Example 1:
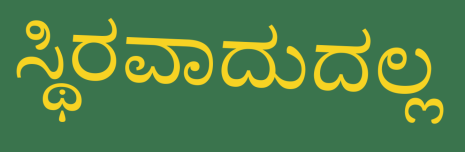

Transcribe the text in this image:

ಸ್ಥಿರವಾದುದಲ್ಲ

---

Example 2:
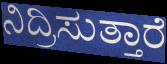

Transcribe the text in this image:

ನಿದ್ರಿಸುತ್ತಾರೆ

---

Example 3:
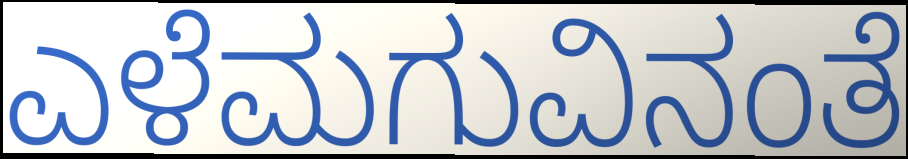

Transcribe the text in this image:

ಎಳೆಮಗುವಿನಂತೆ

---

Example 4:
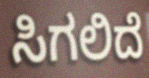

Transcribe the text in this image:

ಸಿಗಲಿದೆ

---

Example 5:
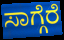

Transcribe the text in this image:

ಸಾಗ್ಗೆರೆ